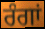
ਰੰਗਾਂ